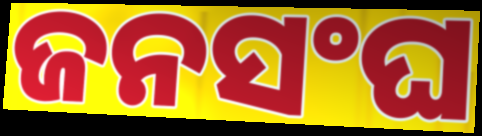
ଜନସଂଘ